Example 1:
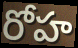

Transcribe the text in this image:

రోహ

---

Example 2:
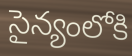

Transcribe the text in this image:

సైన్యంలోకి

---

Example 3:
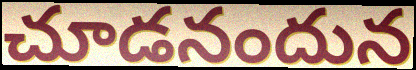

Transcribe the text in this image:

చూడనందున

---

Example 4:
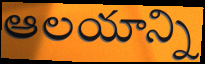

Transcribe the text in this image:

ఆలయాన్ని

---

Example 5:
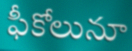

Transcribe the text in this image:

ఫీకోలునూ